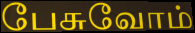
பேசுவோம்